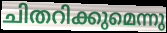
ചിതറിക്കുമെന്നു